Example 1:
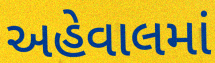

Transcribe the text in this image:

અહેવાલમાં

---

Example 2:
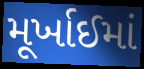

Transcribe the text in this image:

મૂર્ખાઈમાં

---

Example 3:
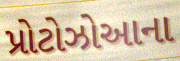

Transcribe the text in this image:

પ્રોટોઝોઆના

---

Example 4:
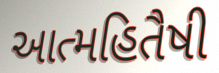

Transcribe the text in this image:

આત્મહિતૈષી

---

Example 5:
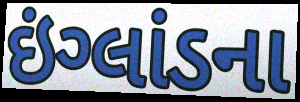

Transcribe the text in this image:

ઇંગ્લાંડના